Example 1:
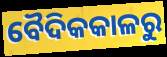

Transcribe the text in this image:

ବୈଦିକକାଳରୁ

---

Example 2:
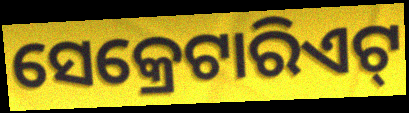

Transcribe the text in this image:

ସେକ୍ରେଟାରିଏଟ୍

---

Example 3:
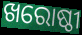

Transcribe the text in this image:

ଖରୋଷ୍ଠୀ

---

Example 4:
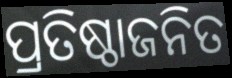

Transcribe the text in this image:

ପ୍ରତିଷ୍ଠାଜନିତ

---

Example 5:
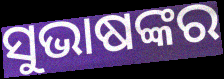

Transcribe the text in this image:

ସୁଭାଷଙ୍କର